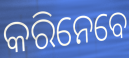
କରିନେବେ